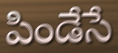
పిండేసే